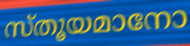
സ്തൂയമാനോ